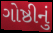
ગોષ્ઠીનું